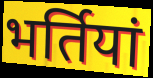
भर्तियां